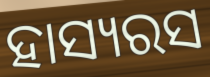
ହାସ୍ୟରସ